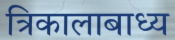
त्रिकालाबाध्य